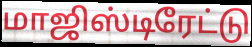
மாஜிஸ்டிரேட்டு